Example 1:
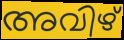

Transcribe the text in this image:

അവിഴ്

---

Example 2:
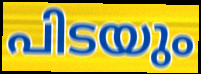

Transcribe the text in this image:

പിടയും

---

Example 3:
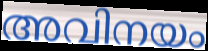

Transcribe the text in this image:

അവിനയം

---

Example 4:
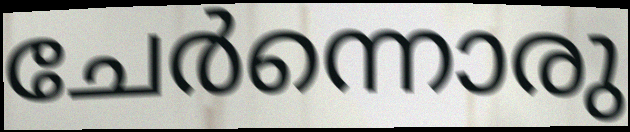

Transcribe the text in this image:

ചേർന്നൊരു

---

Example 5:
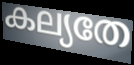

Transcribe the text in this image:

കല്യതേ